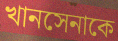
খানসেনাকে